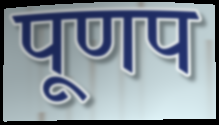
पूणप